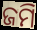
ଜମି